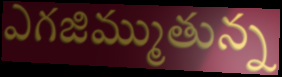
ఎగజిమ్ముతున్న